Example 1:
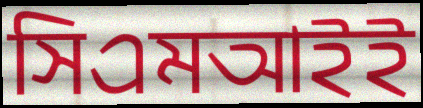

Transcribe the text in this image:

সিএমআইই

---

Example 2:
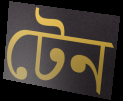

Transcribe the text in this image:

টেন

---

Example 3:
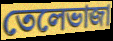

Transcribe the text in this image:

তেলেভাজা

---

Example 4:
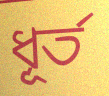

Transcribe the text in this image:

ধূর্ত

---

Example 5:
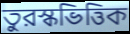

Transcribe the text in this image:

তুরস্কভিত্তিক